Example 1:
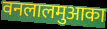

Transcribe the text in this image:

वनलालमुआका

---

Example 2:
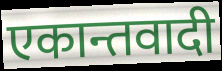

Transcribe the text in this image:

एकान्तवादी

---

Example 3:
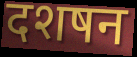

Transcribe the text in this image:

दशषन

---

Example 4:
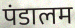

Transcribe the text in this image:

पंडालम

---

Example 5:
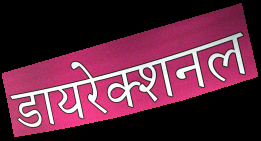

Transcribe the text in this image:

डायरेक्शनल